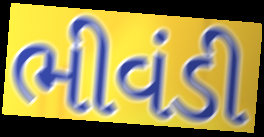
ભીવંડી